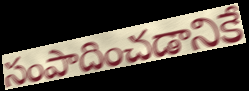
సంపాదించడానికే